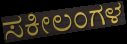
ಸಕೀಲಂಗಳ